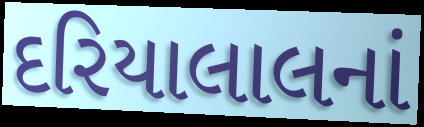
દરિયાલાલનાં